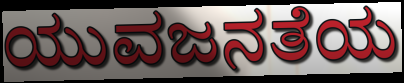
ಯುವಜನತೆಯ